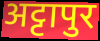
अट्टापुर